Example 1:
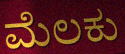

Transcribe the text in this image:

ಮೆಲಕು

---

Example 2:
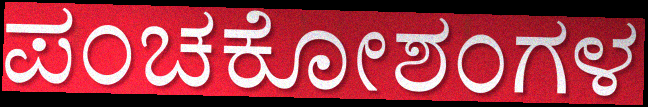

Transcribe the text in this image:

ಪಂಚಕೋಶಂಗಳ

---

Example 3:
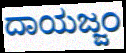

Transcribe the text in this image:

ದಾಯಜ್ಜಂ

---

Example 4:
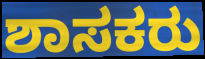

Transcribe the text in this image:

ಶಾಸಕರು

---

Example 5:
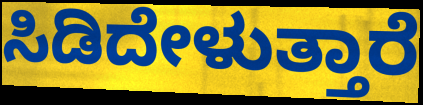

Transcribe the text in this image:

ಸಿಡಿದೇಳುತ್ತಾರೆ